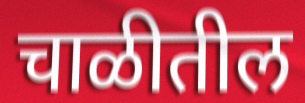
चाळीतील